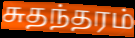
சுதந்தரம்